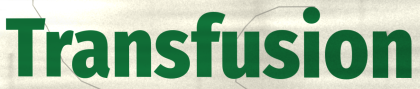
Transfusion